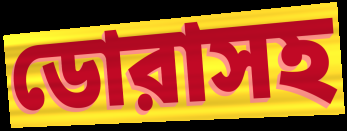
ডোরাসহ